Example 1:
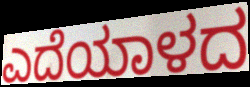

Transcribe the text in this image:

ಎದೆಯಾಳದ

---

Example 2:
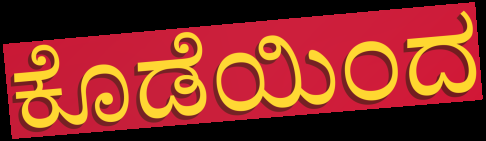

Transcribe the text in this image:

ಕೊಡೆಯಿಂದ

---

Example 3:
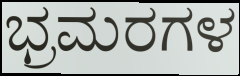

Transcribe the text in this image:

ಭ್ರಮರಗಳ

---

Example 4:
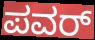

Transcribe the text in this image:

ಪವರ್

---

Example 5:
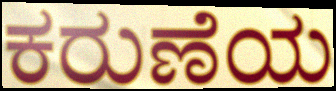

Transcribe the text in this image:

ಕರುಣೆಯ